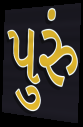
પુરું